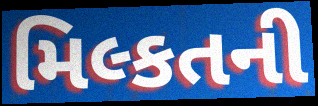
મિલ્કતની